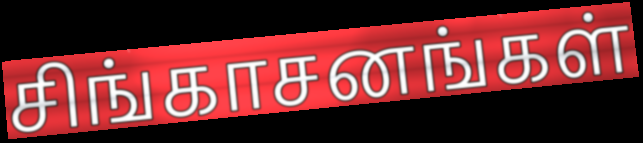
சிங்காசனங்கள்